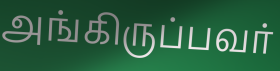
அங்கிருப்பவர்